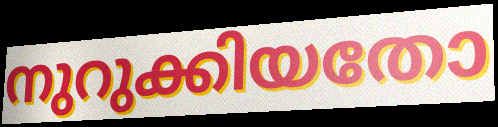
നുറുക്കിയതോ